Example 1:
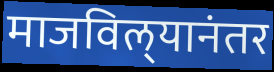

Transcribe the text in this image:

माजविल्यानंतर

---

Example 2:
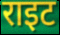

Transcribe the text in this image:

राइट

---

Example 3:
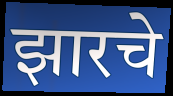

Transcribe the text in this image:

झारचे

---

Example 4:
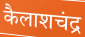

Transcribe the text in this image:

कैलाशचंद्र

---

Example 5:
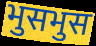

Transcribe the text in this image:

भुसभुस